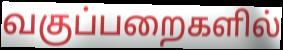
வகுப்பறைகளில்